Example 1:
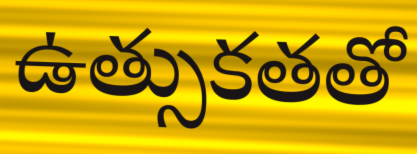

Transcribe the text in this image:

ఉత్సుకతతో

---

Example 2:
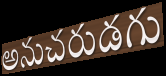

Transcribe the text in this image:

అనుచరుడగు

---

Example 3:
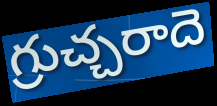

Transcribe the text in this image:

గ్రుచ్చరాదె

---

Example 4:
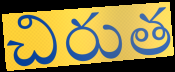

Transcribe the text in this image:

చిరుత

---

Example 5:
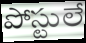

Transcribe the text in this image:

పోస్టులే